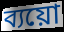
ব্যয়ো